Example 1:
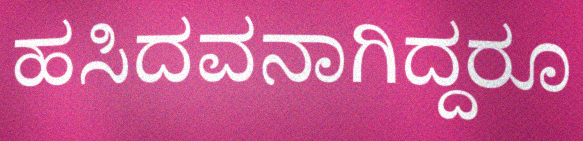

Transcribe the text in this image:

ಹಸಿದವನಾಗಿದ್ದರೂ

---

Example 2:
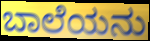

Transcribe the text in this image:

ಬಾಲೆಯನು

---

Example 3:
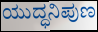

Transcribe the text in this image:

ಯುದ್ಧನಿಪುಣ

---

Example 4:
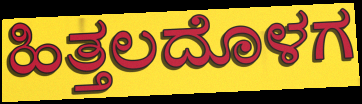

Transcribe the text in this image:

ಹಿತ್ತಲದೊಳಗ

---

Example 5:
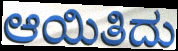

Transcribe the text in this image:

ಆಯಿತಿದು